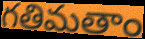
గతిమతాం